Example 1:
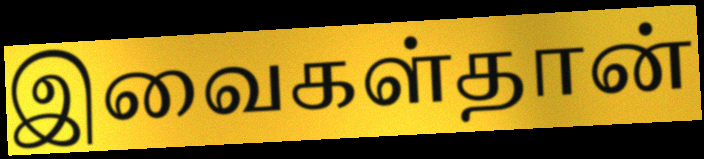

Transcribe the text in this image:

இவைகள்தான்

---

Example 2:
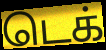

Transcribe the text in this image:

டெக்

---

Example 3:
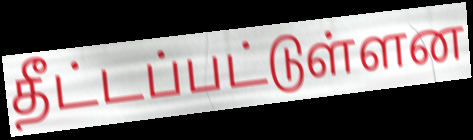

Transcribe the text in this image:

தீட்டப்பட்டுள்ளன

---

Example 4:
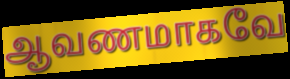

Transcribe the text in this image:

ஆவணமாகவே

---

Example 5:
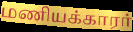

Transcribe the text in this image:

மணியக்காரர்